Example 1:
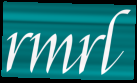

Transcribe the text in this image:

rmrl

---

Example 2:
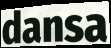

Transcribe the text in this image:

dansa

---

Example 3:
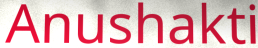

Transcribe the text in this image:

Anushakti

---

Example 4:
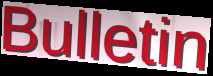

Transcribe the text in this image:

Bulletin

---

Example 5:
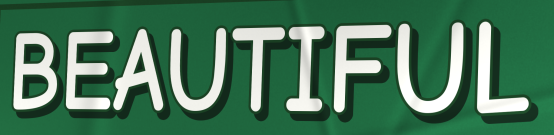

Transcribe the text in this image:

BEAUTIFUL